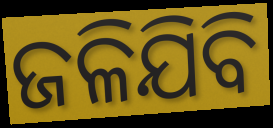
ଜଳିଯିବି